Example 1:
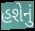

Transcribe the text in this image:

હશેનું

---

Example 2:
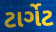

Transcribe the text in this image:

ટાર્ગેટ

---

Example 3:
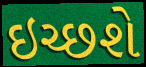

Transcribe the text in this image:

ઇચ્છશે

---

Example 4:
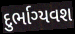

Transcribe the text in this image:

દુર્ભાગ્યવશ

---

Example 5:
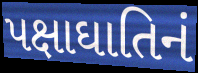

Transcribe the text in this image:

પક્ષાઘાતિનં